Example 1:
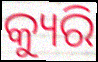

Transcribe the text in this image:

କ୍ୟୁରି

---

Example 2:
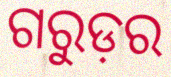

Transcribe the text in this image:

ଗରୁଡ଼ର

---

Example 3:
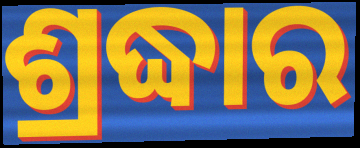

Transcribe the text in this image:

ଶ୍ରଦ୍ଧାର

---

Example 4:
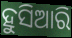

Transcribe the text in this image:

ହୁସିଆରି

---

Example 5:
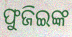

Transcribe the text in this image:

ଫୁଜିଇଙ୍କ